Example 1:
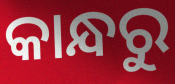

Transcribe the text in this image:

କାନ୍ଧରୁ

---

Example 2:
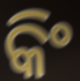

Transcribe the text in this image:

କିଂ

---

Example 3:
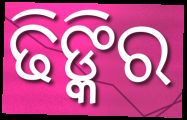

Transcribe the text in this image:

ଢିଙ୍କିର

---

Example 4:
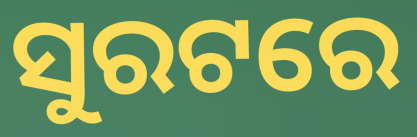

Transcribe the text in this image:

ସୁରଟରେ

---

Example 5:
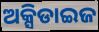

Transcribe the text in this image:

ଅକ୍ସିଡାଇଜ